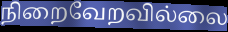
நிறைவேறவில்லை